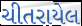
ચીતરાયેલ